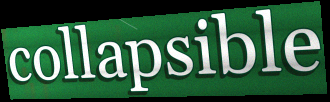
collapsible